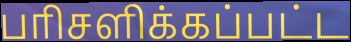
பரிசளிக்கப்பட்ட